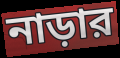
নাড়ার